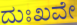
ದುಃಖವೇ